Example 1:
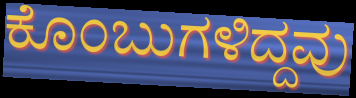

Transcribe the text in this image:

ಕೊಂಬುಗಳಿದ್ದವು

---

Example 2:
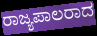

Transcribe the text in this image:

ರಾಜ್ಯಪಾಲರಾದ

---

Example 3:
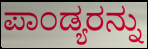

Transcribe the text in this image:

ಪಾಂಡ್ಯರನ್ನು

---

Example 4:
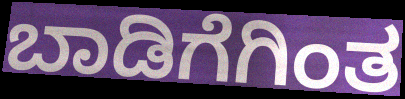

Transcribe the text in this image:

ಬಾಡಿಗೆಗಿಂತ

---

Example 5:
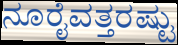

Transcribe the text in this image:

ನೂರೈವತ್ತರಷ್ಟು